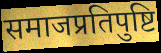
समाजप्रतिपुष्टि